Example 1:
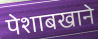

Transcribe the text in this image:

पेशाबखाने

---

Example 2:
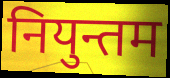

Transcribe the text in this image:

नियुन्तम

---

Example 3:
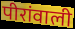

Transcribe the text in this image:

पीरांवाली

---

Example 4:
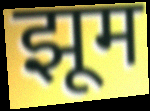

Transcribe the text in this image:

झूम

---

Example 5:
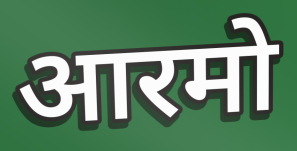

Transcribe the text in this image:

आरमो